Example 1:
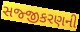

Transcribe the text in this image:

સજ્જીકરણની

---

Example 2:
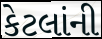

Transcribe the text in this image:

કેટલાંની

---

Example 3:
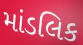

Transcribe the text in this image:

માંડલિક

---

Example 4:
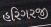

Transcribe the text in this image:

હરિગરજી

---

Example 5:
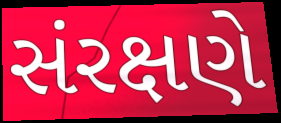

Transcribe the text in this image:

સંરક્ષણે